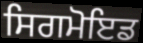
ਸਿਗਮੋਇਡ